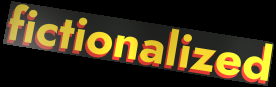
fictionalized